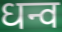
धन्व